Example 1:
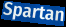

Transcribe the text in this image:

Spartan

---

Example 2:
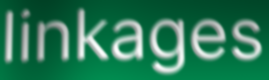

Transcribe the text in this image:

linkages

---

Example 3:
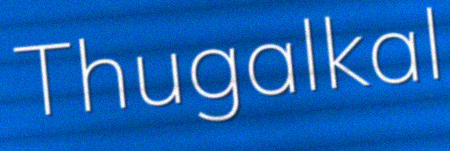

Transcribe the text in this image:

Thugalkal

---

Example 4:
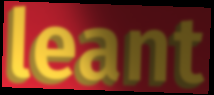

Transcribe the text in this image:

leant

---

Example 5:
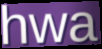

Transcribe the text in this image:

hwa